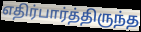
எதிர்பார்த்திருந்த